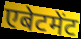
एबेटमेंट